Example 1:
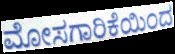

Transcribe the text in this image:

ಮೋಸಗಾರಿಕೆಯಿಂದ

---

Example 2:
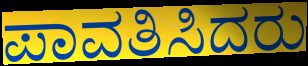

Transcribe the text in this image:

ಪಾವತಿಸಿದರು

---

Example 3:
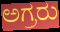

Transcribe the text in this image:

ಅಗ್ರರು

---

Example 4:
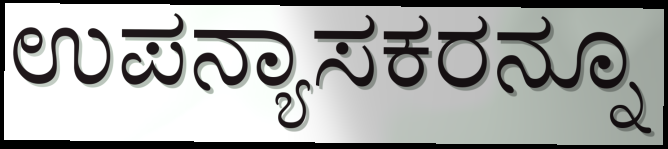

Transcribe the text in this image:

ಉಪನ್ಯಾಸಕರನ್ನೂ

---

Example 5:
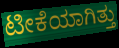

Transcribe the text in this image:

ಟೀಕೆಯಾಗಿತ್ತು